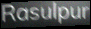
Rasulpur